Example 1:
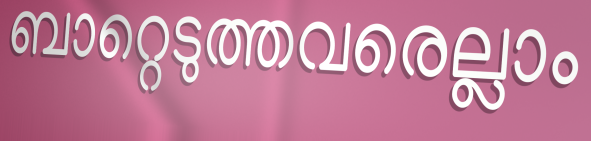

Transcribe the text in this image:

ബാറ്റെടുത്തവരെല്ലാം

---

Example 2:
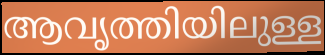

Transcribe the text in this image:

ആവൃത്തിയിലുള്ള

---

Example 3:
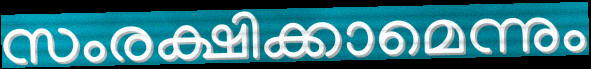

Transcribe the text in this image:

സംരക്ഷിക്കാമെന്നും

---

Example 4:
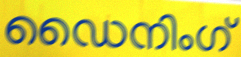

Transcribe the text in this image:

ഡൈനിംഗ്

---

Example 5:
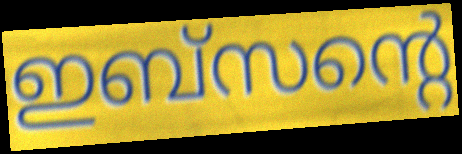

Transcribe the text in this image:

ഇബ്സന്റെ